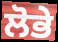
ਲੋਭੇ